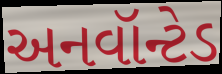
અનવૉન્ટેડ